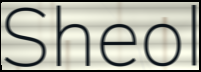
Sheol